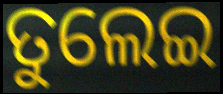
ତୁଲେଇ